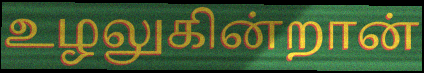
உழலுகின்றான்